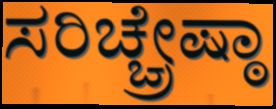
ಸರಿಚ್ಚ್ರೇಷ್ಠಾ